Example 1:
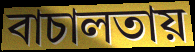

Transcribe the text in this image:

বাচালতায়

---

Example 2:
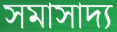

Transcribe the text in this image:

সমাসাদ্য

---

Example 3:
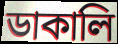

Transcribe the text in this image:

ডাকালি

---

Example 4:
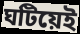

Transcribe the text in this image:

ঘটিয়েই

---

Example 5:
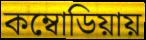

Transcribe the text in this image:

কম্বোডিয়ায়